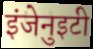
इंजेनुइटी